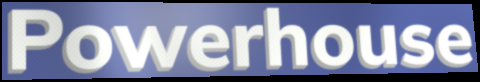
Powerhouse